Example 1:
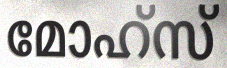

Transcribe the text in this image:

മോഹ്സ്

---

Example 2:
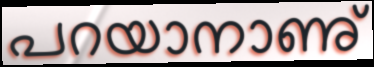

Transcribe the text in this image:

പറയാനാണു്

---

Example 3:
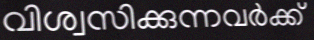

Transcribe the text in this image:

വിശ്വസിക്കുന്നവർക്ക്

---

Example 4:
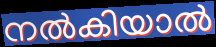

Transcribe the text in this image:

നൽകിയാൽ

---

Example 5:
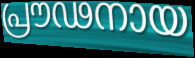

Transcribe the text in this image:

പ്രൗഢനായ